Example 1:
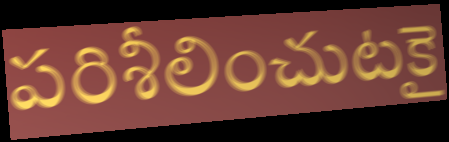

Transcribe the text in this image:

పరిశీలించుటకై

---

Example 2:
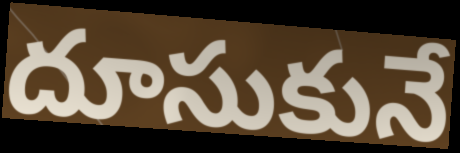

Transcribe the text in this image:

దూసుకునే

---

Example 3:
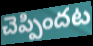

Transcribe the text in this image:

చెప్పిందట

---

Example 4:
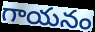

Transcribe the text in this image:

గాయనం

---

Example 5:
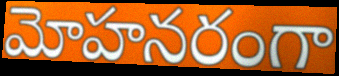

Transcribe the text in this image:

మోహనరంగా